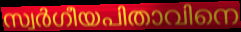
സ്വർഗീയപിതാവിനെ